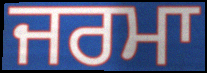
ਜਰਮਾ